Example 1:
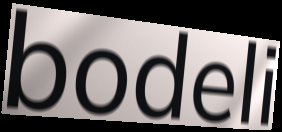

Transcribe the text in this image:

bodeli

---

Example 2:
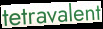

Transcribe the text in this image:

tetravalent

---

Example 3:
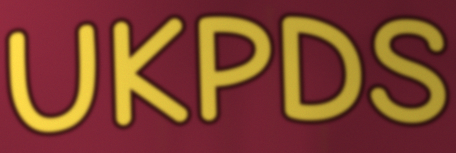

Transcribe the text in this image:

UKPDS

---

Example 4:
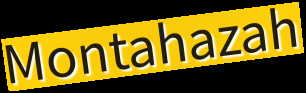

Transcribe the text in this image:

Montahazah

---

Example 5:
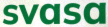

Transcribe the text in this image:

svasa